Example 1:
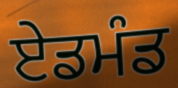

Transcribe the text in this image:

ਏਡਮੰਡ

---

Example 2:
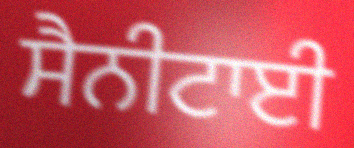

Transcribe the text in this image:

ਸੈਨੀਟਾਈ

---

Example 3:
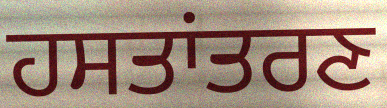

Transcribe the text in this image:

ਹਸਤਾਂਤਰਣ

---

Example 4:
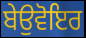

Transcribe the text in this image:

ਬੇਉਵੋਇਰ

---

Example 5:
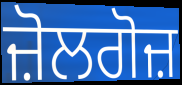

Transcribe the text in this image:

ਜ਼ੋਲਗੋਜ਼